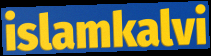
islamkalvi